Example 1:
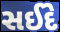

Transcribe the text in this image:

સઈદે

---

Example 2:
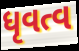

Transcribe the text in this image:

ધૃવત્વ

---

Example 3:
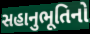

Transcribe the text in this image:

સહાનુભૂતિનો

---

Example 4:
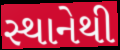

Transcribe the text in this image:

સ્થાનેથી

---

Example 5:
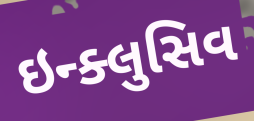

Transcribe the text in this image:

ઇન્ક્લુસિવ